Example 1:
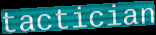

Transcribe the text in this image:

tactician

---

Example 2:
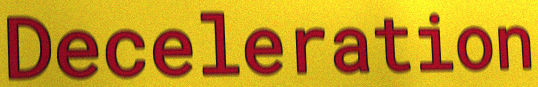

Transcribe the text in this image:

Deceleration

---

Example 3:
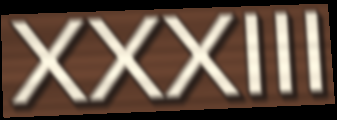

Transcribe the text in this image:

XXXIII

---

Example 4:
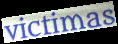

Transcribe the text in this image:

victimas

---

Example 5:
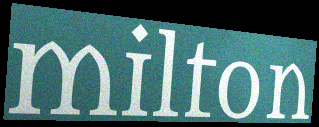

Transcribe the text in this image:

milton